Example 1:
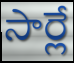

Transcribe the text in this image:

సార్లే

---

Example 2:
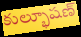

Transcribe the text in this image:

కుల్భూషణ్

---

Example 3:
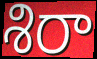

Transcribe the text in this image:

శిరా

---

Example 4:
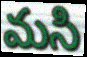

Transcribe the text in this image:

మసి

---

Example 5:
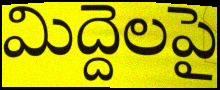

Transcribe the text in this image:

మిద్దెలపై